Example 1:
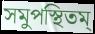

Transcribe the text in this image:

সমুপস্থিতম্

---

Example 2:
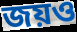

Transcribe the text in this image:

জয়ও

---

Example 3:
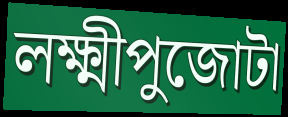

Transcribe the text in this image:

লক্ষ্মীপুজোটা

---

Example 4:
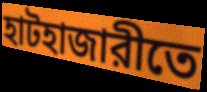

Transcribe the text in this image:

হাটহাজারীতে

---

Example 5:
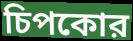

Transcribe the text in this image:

চিপকোর